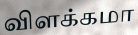
விளக்கமா